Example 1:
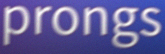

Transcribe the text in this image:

prongs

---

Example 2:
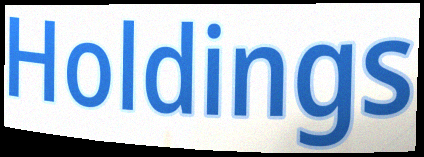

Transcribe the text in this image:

Holdings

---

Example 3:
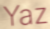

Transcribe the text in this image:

Yaz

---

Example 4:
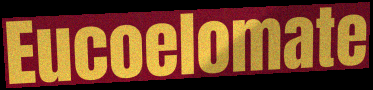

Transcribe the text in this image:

Eucoelomate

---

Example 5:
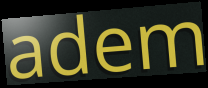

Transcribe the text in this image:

adem